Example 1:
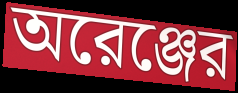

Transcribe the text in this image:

অরেঞ্জের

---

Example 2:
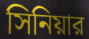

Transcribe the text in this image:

সিনিয়ার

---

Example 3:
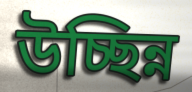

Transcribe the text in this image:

উচ্ছিন্ন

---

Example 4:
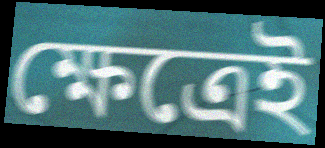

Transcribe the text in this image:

ক্ষেত্রেই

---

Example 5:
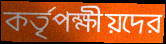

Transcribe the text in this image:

কর্তৃপক্ষীয়দের